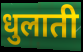
धुलाती